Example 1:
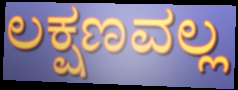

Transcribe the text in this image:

ಲಕ್ಷಣವಲ್ಲ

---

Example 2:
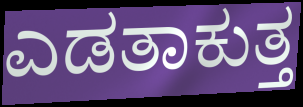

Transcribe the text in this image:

ಎಡತಾಕುತ್ತ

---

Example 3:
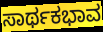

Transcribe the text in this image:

ಸಾರ್ಥಕಭಾವ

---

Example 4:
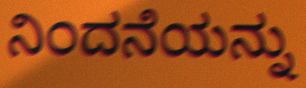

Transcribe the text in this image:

ನಿಂದನೆಯನ್ನು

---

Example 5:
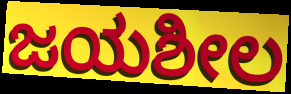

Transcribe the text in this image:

ಜಯಶೀಲ